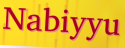
Nabiyyu